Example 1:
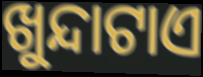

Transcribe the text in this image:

ଖୁନ୍ଦାଟାଏ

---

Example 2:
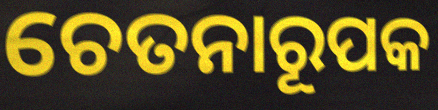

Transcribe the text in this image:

ଚେତନାରୂପକ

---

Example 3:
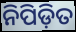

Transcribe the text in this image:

ନିପିଡ଼ିତ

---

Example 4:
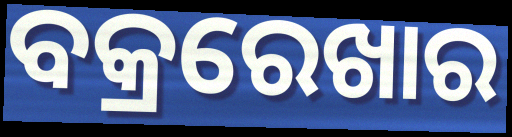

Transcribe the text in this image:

ବକ୍ରରେଖାର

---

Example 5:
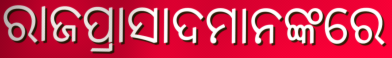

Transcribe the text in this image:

ରାଜପ୍ରାସାଦମାନଙ୍କରେ